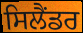
ਸਿਲੈਂਡਰ